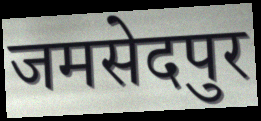
जमसेदपुर